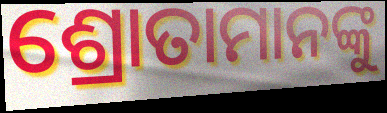
ଶ୍ରୋତାମାନଙ୍କୁ